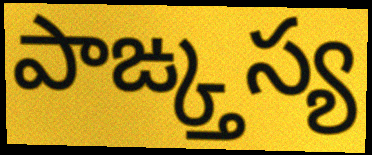
పాఙ్క్తస్య